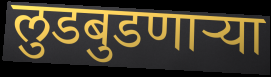
लुडबुडणाऱ्या